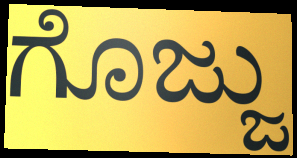
ಗೊಜ್ಜು